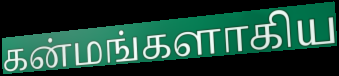
கன்மங்களாகிய